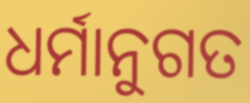
ଧର୍ମାନୁଗତ